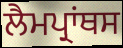
ਲੈਮਪ੍ਰਾਂਥਸ